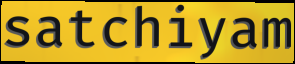
satchiyam